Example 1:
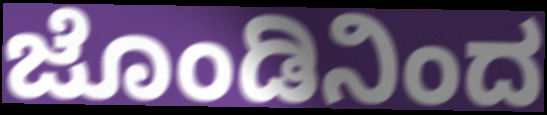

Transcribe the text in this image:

ಜೊಂಡಿನಿಂದ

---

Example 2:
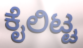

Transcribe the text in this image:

ಕೈಲಿಟ್ಟ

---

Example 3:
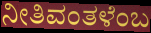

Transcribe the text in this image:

ನೀತಿವಂತಳೆಂಬ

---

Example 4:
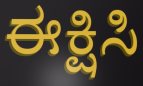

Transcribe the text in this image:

ಈಕ್ಷಿಸಿ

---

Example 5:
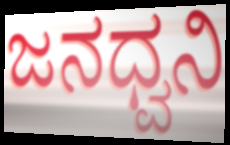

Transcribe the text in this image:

ಜನಧ್ವನಿ